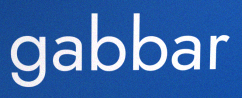
gabbar